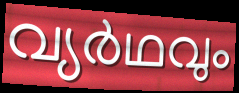
വ്യർഥവും